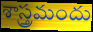
శాస్త్రమందు